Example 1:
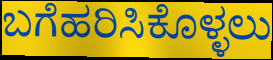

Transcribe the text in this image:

ಬಗೆಹರಿಸಿಕೊಳ್ಳಲು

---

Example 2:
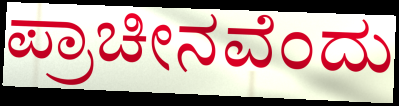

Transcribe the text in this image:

ಪ್ರಾಚೀನವೆಂದು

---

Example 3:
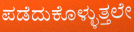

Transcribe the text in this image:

ಪಡೆದುಕೊಳ್ಳುತ್ತಲೇ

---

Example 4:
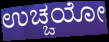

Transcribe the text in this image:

ಉಚ್ಚಯೋ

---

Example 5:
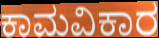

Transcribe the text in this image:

ಕಾಮವಿಕಾರ